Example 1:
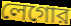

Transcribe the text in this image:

লেগোর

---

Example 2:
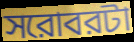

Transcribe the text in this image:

সরোবরটা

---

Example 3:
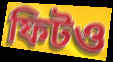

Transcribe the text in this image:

ফিটও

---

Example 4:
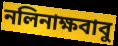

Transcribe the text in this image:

নলিনাক্ষবাবু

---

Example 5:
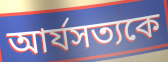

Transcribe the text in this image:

আর্যসত্যকে